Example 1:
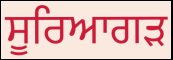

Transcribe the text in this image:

ਸੂਰਿਆਗੜ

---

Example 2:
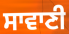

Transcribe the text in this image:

ਸਾਵਾਣੀ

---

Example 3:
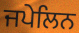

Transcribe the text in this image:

ਜਪੇਲਿਨ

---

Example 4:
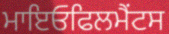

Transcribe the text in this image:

ਮਾਇਓਫਿਲਮੈਂਟਸ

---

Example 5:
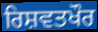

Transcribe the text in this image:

ਰਿਸ਼ਵਤਖੌਰ